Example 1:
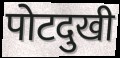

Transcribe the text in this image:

पोटदुखी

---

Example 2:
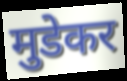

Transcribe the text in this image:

मुडेकर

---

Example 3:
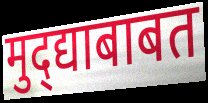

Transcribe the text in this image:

मुद्द्याबाबत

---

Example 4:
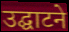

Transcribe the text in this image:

उद्घाटने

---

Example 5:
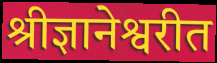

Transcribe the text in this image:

श्रीज्ञानेश्वरीत